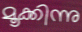
മൂക്കിന്നു